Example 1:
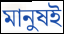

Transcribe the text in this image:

মানুষই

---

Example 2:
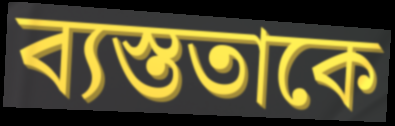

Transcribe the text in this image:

ব্যস্ততাকে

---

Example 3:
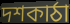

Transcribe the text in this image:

দশকাঠা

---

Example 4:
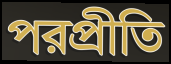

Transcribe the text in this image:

পরপ্রীতি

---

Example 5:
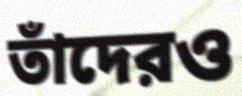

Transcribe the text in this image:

তাঁদেরও